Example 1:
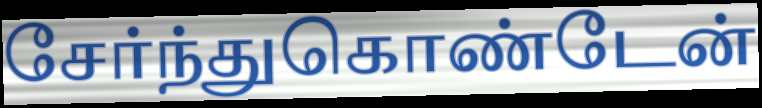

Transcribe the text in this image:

சேர்ந்துகொண்டேன்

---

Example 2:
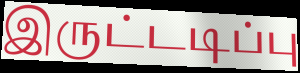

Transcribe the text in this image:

இருட்டடிப்பு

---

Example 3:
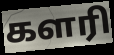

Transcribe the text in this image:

களரி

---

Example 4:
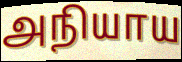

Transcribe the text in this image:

அநியாய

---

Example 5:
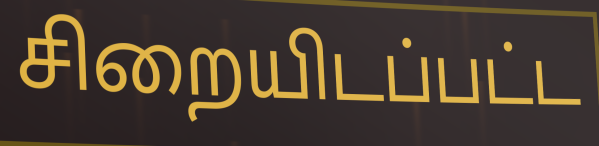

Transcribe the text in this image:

சிறையிடப்பட்ட